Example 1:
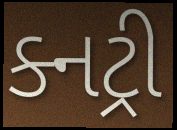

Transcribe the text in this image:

ક્નટ્રી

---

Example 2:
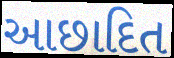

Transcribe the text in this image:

આછાદિત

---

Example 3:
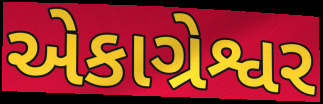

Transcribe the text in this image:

એકાગ્રેશ્વર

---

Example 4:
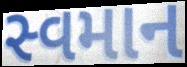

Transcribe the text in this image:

સ્વમાન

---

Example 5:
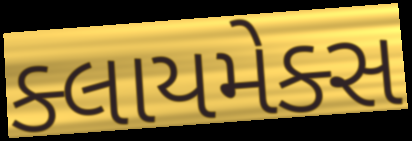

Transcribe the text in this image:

ક્લાયમેક્સ